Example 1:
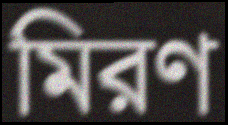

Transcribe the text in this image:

মিরণ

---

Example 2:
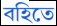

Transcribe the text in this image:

বহিতে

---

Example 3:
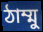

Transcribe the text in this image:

ঠাম্মু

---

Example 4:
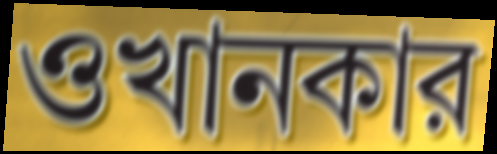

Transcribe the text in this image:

ওখানকার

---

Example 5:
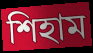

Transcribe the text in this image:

শিহাম